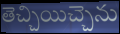
తెచ్చియిచ్చెను